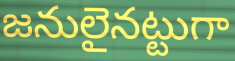
జనులైనట్టుగా